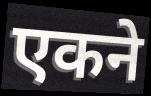
एकने